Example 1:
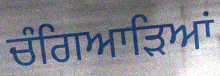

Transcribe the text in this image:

ਚੰਗਿਆੜਿਆਂ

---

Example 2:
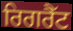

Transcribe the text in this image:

ਰਿਗਰੈੱਟ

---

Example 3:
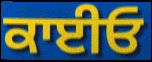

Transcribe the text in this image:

ਕਾਈਓ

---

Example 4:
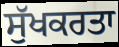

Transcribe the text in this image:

ਸੁੱਖਕਰਤਾ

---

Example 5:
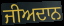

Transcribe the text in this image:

ਜੀਅਦਾਨ